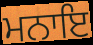
ਮਨਾਇ